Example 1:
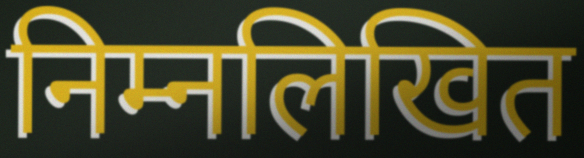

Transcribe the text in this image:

निम्नलिखित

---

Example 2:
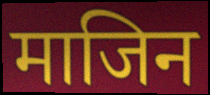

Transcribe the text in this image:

माजिन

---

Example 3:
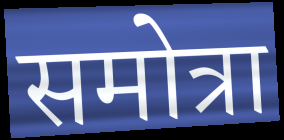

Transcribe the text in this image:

समोत्रा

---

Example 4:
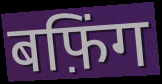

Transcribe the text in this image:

बफ़िंग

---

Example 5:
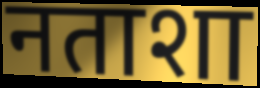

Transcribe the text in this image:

नताशा